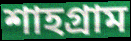
শাহগ্রাম